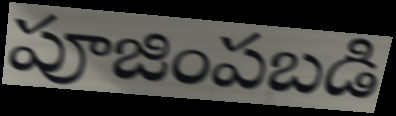
పూజింపబడి